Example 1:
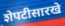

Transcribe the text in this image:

शेपटीसारखे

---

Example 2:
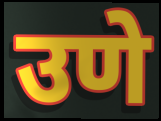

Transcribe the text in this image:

उणे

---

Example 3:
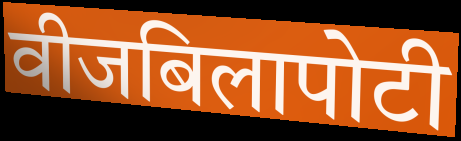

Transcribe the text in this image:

वीजबिलापोटी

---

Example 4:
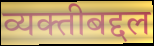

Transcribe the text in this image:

व्यक्तीबद्दल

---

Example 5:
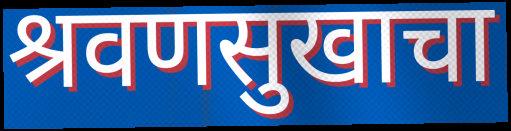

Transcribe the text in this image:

श्रवणसुखाचा